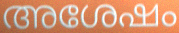
അശേഷം